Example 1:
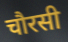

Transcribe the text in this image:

चौरसी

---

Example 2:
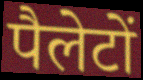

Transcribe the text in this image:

पैलेटों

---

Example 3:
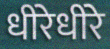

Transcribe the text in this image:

धीरेधीरे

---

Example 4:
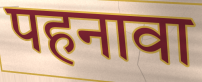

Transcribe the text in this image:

पहनावा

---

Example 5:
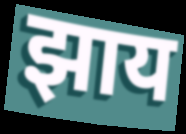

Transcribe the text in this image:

झाय